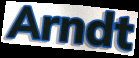
Arndt